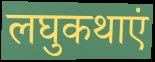
लघुकथाएं